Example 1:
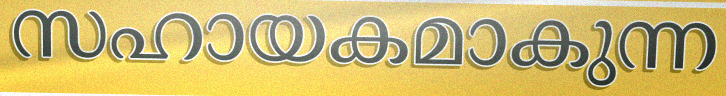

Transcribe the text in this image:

സഹായകമാകുന്ന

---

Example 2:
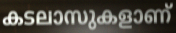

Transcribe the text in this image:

കടലാസുകളാണ്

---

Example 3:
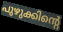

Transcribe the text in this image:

പുഴുക്കിന്റെ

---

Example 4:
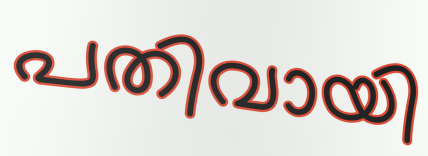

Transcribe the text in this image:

പതിവായി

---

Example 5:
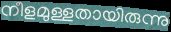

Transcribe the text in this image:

നീളമുള്ളതായിരുന്നു